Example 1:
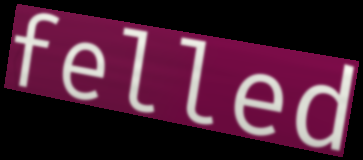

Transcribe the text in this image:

felled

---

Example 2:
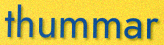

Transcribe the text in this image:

thummar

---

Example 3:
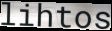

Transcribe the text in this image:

lihtos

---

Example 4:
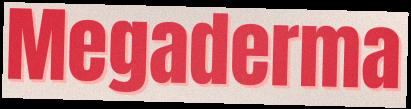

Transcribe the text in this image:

Megaderma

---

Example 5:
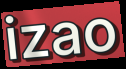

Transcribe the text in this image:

izao